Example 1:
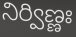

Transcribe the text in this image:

నిర్విణ్ణః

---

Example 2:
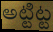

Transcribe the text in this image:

అట్టిట్ట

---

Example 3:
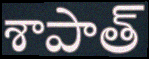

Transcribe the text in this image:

శాపాత్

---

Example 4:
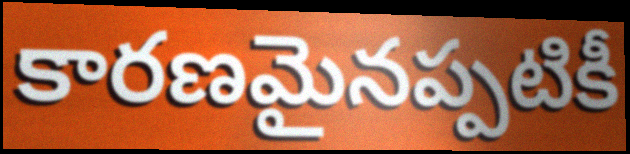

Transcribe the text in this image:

కారణమైనప్పటికీ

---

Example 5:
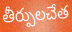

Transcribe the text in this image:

తీర్పులచేత